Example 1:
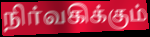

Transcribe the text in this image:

நிர்வகிக்கும்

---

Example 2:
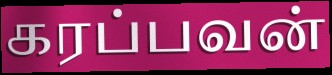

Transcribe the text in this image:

கரப்பவன்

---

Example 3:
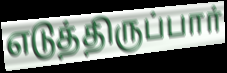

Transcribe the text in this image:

எடுத்திருப்பார்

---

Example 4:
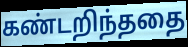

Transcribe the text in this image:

கண்டறிந்ததை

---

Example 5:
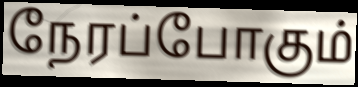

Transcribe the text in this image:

நேரப்போகும்